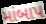
માંબાપ